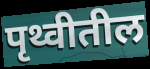
पृथ्वीतील